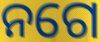
ନଗେ